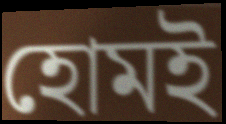
হোমই